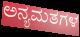
ಅನ್ಯಮತಗಳ